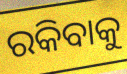
ରକିବାକୁ